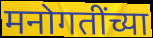
मनोगतींच्या